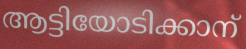
ആട്ടിയോടിക്കാന്